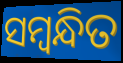
ସମ୍ଵନ୍ଧିତ